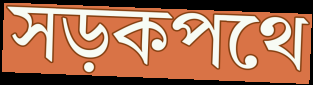
সড়কপথে